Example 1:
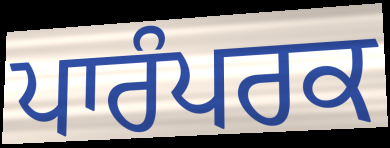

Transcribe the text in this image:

ਪਾਰੰਪਰਕ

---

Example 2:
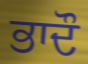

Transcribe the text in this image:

ਭਾਦੌ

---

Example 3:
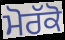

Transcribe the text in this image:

ਮੋਰੱਕੋ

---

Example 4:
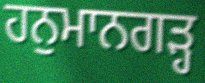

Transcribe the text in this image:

ਹਨੁਮਾਨਗੜ੍ਹ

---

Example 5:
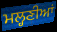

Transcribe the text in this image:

ਮਲ੍ਹਣੀਆਂ